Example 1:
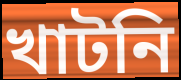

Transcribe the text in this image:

খাটনি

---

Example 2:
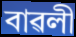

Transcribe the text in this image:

বাৱলী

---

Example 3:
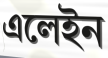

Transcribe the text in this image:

এলেইন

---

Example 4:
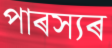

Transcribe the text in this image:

পাৰস্যৰ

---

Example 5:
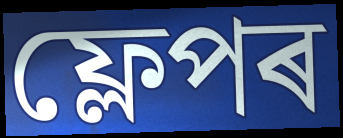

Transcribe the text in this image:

ফ্লেপৰ